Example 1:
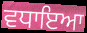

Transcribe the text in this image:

ਵਧਾਇਆ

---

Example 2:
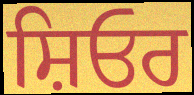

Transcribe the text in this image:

ਸ਼ਿਓਰ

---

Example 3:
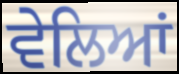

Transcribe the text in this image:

ਵੇਲਿਆਂ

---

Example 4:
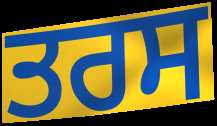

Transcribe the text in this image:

ਤਰਸ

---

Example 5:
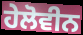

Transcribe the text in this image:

ਹੇਲੋਵੀਨ